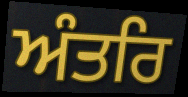
ਅੰਤਰਿ